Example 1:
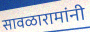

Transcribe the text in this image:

सावळारामांनी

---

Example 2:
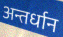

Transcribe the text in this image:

अन्तर्धान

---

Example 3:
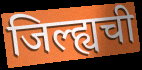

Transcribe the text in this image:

जिल्ह्यची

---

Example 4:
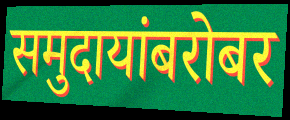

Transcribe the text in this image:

समुदायांबरोबर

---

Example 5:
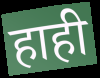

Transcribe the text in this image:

हाही